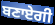
ਬਣਾਏਗੀ